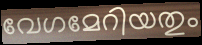
വേഗമേറിയതും